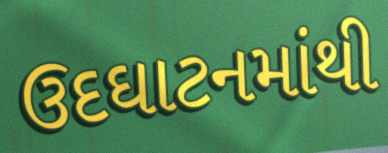
ઉદઘાટનમાંથી